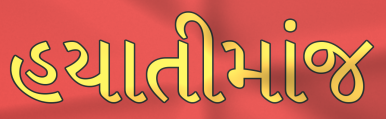
હયાતીમાંજ